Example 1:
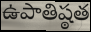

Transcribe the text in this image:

ఉపాతిష్ఠత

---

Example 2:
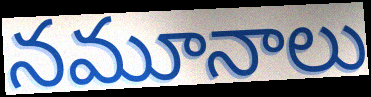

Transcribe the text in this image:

నమూనాలు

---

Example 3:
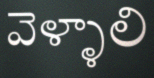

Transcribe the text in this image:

వెళ్ళాలి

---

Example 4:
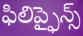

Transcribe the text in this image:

ఫిలిప్ఫైన్స్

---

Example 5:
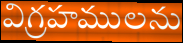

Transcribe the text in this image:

విగ్రహములను